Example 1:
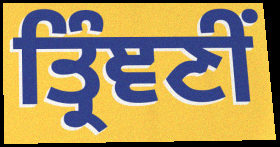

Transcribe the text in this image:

ਤ੍ਰਿੰਞਣੀਂ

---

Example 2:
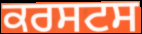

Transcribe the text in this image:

ਕਰਸਟਸ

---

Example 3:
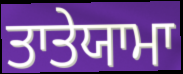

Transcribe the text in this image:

ਤਾਤੇਯਾਮਾ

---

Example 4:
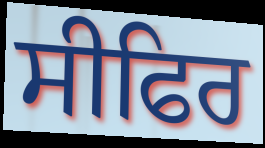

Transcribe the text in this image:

ਸੀਫਿਰ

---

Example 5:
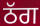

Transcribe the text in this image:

ਠੱਗ